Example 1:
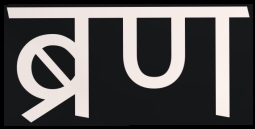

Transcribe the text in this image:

ब्रण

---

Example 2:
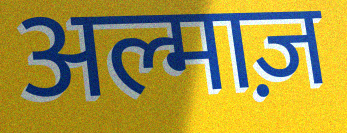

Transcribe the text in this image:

अल्माज़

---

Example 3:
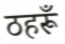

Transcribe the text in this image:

ठहरूँ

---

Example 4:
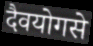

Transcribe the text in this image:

दैवयोगसे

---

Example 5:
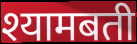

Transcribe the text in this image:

श्यामबती